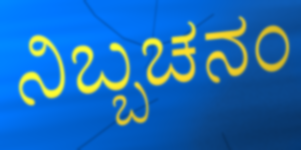
ನಿಬ್ಬಚನಂ